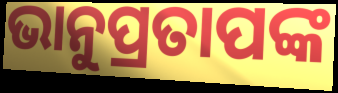
ଭାନୁପ୍ରତାପଙ୍କ